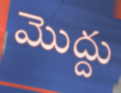
మొద్దు